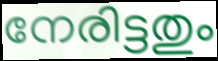
നേരിട്ടതും